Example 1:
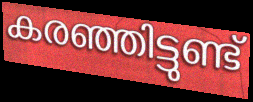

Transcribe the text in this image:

കരഞ്ഞിട്ടുണ്ട്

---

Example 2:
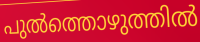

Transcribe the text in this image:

പുൽത്തൊഴുത്തിൽ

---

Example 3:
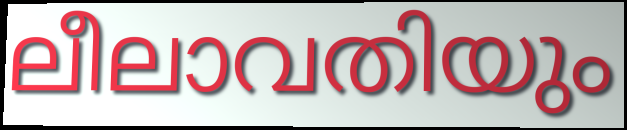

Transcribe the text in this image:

ലീലാവതിയും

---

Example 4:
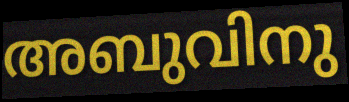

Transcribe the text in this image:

അബുവിനു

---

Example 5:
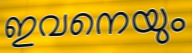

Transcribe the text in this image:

ഇവനെയും